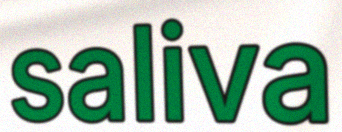
saliva